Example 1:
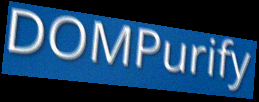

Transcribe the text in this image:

DOMPurify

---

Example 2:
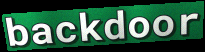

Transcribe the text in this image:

backdoor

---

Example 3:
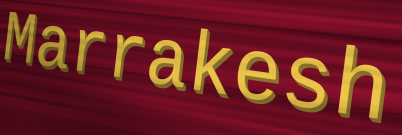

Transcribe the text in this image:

Marrakesh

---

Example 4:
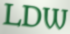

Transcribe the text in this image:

LDW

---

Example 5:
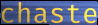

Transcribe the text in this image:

chaste